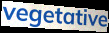
vegetative